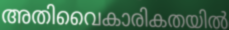
അതിവൈകാരികതയിൽ